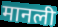
मानली